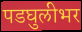
पडघुलीभर